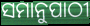
ସମାନୁପାଠୀ